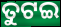
ତୁଟଇ